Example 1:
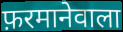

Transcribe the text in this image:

फ़रमानेवाला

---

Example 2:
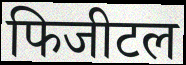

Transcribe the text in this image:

फिजीटल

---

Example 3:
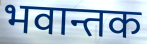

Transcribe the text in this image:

भवान्तक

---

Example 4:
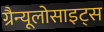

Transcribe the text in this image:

ग्रैन्यूलोसाइट्स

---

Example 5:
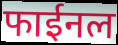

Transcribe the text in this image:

फाईनल